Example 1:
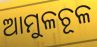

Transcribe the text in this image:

ଆମୁଳଚୂଳ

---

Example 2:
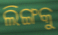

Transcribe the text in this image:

ଲିଙ୍ଗକୁ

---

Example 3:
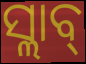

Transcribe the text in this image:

ସ୍ଲାବ୍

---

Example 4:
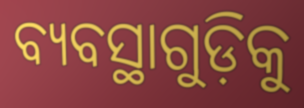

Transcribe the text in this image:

ବ୍ୟବସ୍ଥାଗୁଡ଼ିକୁ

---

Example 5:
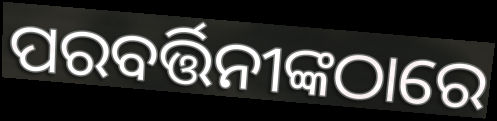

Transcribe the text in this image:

ପରବର୍ତ୍ତିନୀଙ୍କଠାରେ